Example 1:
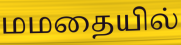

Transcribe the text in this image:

மமதையில்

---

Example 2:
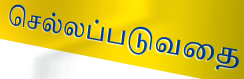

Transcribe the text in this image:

செல்லப்படுவதை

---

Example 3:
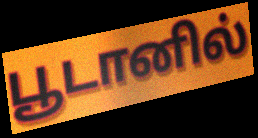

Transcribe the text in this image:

பூடானில்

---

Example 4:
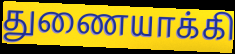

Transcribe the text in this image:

துணையாக்கி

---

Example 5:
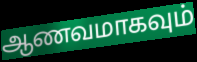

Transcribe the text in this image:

ஆணவமாகவும்